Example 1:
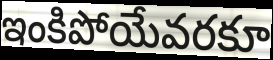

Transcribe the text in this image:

ఇంకిపోయేవరకూ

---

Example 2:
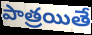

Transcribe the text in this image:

పాత్రయితే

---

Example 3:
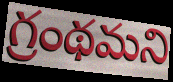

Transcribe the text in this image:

గ్రంథమని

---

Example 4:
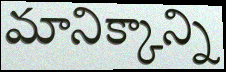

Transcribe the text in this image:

మానిక్కాన్ని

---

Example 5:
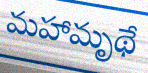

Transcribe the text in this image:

మహామృథే